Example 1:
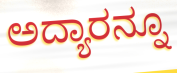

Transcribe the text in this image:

ಅದ್ಯಾರನ್ನೂ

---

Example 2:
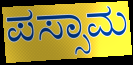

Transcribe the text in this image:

ಪಸ್ಸಾಮ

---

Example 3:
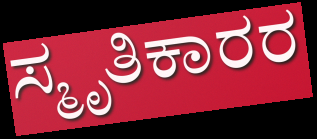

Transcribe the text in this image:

ಸ್ಮೃತಿಕಾರರ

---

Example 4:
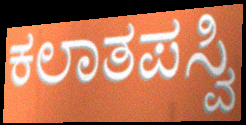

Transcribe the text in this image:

ಕಲಾತಪಸ್ವಿ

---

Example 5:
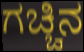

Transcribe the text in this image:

ಗಚ್ಚಿನ